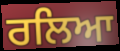
ਰਲਿਆ